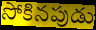
సోకినపుడు